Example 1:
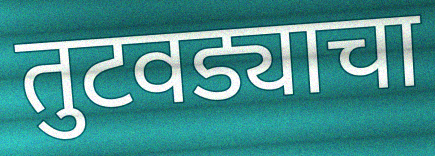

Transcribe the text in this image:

तुटवड्याचा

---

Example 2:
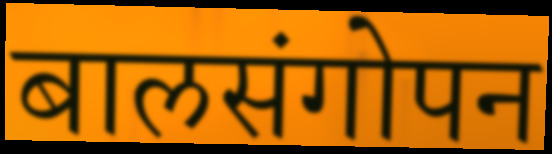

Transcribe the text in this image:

बालसंगोपन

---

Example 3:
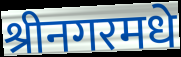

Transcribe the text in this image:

श्रीनगरमधे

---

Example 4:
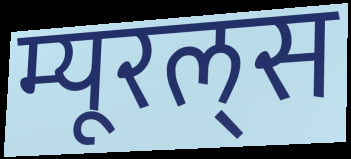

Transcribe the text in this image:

म्यूरल्स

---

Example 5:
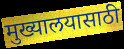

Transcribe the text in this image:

मुख्यालयासाठी